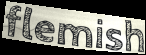
flemish